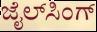
ಜೈಲ್‌ಸಿಂಗ್